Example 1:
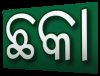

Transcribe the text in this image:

ଛକା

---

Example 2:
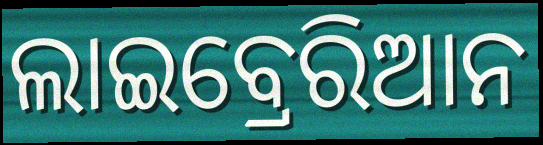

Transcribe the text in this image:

ଲାଇବ୍ରେରିଆନ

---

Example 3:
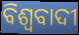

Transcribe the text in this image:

ବିଶ୍ବବାଦୀ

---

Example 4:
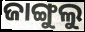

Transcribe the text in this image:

ଜାଙ୍ଗୁଲୁ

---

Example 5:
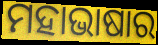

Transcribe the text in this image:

ମହାଭାଷାର